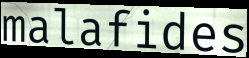
malafides